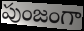
పుంజంగా